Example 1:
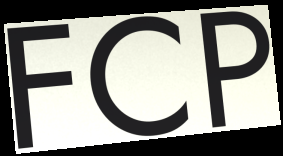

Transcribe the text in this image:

FCP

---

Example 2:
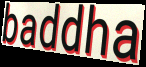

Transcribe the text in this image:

baddha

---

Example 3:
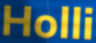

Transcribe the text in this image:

Holli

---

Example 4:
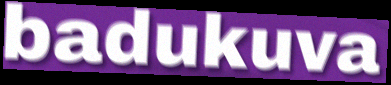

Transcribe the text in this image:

badukuva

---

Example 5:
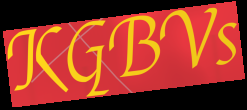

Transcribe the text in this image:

KGBVs